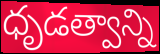
ధృడత్వాన్ని